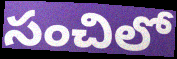
సంచిలో